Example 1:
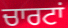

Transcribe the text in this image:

ਚਾਰਟਾਂ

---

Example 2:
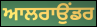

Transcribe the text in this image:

ਆਲਰਾਉਂਡਰ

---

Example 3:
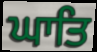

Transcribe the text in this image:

ਘਾਤਿ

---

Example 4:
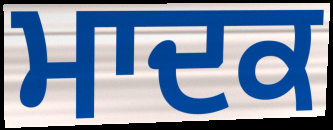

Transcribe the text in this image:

ਮਾਦਕ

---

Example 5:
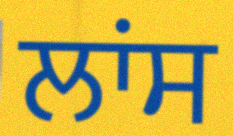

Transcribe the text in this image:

ਲਾਂਸ